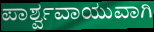
ಪಾರ್ಶ್ವವಾಯುವಾಗಿ